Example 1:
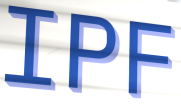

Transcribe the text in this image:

IPF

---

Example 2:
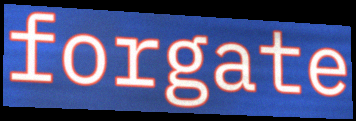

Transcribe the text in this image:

forgate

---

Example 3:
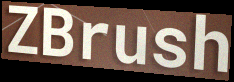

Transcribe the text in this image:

ZBrush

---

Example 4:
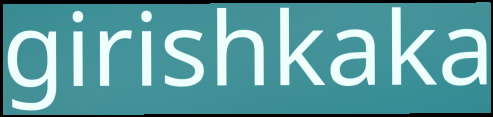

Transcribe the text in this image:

girishkaka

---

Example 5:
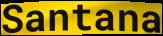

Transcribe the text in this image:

Santana